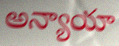
అన్యాయా